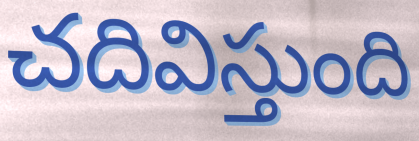
చదివిస్తుంది